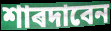
শাৰদাবেন